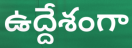
ఉద్దేశంగా